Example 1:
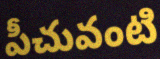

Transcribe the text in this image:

పీచువంటి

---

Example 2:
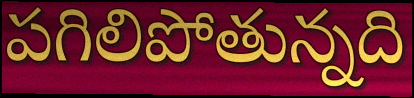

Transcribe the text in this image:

పగిలిపోతున్నది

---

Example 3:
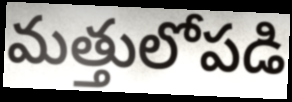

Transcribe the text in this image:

మత్తులోపడి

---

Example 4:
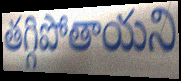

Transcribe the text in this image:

తగ్గిపోతాయని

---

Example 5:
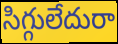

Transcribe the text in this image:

సిగ్గులేదురా